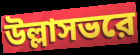
উল্লাসভরে